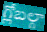
గ్లోబల్గా